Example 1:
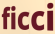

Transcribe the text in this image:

ficci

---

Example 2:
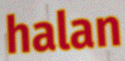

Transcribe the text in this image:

halan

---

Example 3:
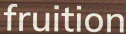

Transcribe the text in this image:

fruition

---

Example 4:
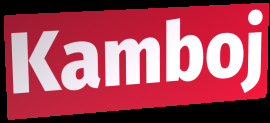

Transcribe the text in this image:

Kamboj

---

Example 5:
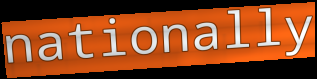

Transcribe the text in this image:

nationally